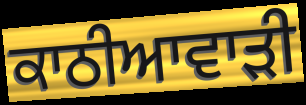
ਕਾਠੀਆਵਾੜੀ